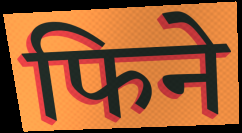
फिने